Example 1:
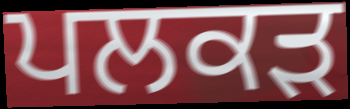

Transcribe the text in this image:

ਪਲਕੜ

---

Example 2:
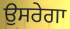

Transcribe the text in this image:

ਉਸਰੇਗਾ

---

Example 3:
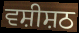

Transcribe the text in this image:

ਵਸ਼ੀਸ਼ਠ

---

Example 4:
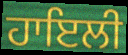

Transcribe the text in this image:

ਹਾਇਲੀ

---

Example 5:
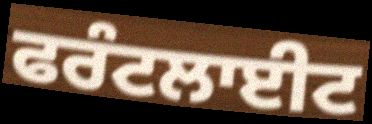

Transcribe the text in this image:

ਫਰੰਟਲਾਈਟ